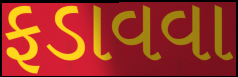
ફડાવવા